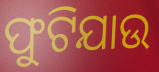
ଫୁଟିଯାଉ